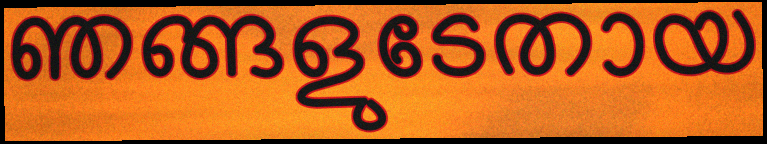
ഞങ്ങളുടേതായ